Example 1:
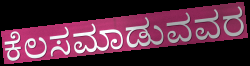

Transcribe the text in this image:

ಕೆಲಸಮಾಡುವವರ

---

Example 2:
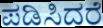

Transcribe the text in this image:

ಪಡಿಸಿದರೆ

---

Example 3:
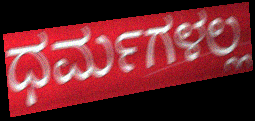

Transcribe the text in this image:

ಧರ್ಮಗಳಲ್ಲ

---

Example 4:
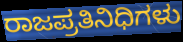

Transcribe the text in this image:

ರಾಜಪ್ರತಿನಿಧಿಗಳು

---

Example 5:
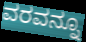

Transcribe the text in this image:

ವರವನ್ನೂ